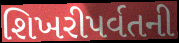
શિખરીપર્વતની